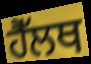
ਹੈੱਲਥ